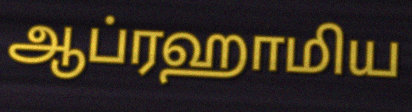
ஆப்ரஹாமிய